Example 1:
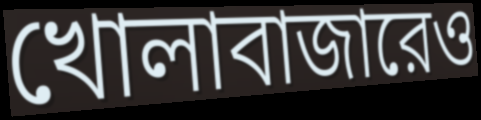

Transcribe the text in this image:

খোলাবাজারেও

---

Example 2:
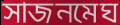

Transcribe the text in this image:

সাজনমেঘ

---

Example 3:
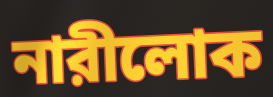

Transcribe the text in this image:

নারীলোক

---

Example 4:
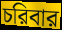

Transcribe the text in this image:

চরিবার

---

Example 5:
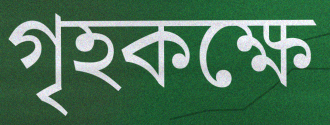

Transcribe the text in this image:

গৃহকক্ষে